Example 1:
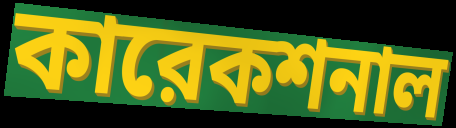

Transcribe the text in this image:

কারেকশনাল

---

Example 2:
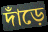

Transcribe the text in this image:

দাঁড়ে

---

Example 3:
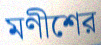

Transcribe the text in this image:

মণীশের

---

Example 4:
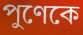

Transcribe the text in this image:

পুণেকে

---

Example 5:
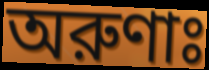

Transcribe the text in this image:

অরুণাঃ